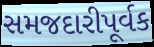
સમજદારીપૂર્વક